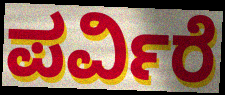
ಪರ್ವಿರೆ